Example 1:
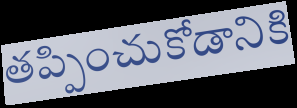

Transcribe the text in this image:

తప్పించుకోడానికి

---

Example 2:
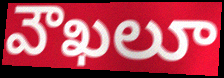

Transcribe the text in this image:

వౌఖలూ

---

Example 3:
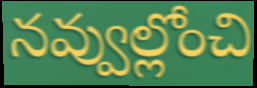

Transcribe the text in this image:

నవ్వుల్లోంచి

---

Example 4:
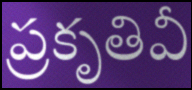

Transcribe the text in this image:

ప్రకృతివీ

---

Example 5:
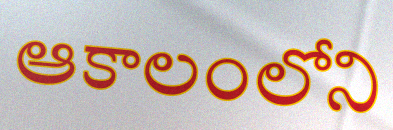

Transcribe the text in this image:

ఆకాలంలోని